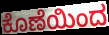
ಕೊಣೆಯಿಂದ